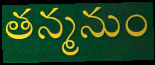
తన్మనుం